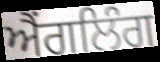
ਐਂਗਲਿੰਗ